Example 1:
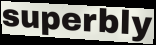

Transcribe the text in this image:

superbly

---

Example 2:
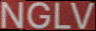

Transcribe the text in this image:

NGLV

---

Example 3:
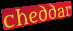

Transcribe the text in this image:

cheddar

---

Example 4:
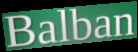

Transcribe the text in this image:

Balban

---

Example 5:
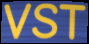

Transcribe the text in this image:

VST